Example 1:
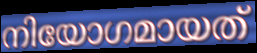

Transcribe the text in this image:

നിയോഗമായത്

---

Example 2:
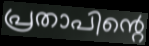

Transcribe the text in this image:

പ്രതാപിന്റെ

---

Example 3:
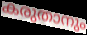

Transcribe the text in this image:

കരുതാനും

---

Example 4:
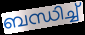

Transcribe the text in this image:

ബന്ധിച്ച്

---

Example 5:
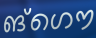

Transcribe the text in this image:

ങ്ഗൌ